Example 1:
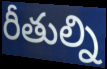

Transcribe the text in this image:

రీతుల్ని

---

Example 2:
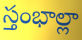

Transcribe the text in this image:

స్తంభాల్లా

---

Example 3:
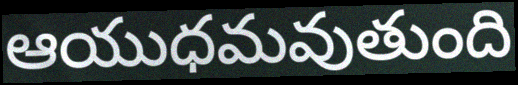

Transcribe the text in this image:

ఆయుధమవుతుంది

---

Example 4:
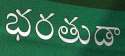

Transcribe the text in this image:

భరతుడా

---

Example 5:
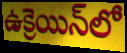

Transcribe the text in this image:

ఉక్రెయిన్‌లో